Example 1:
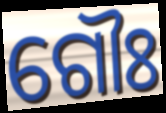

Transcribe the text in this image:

ଗୌଃ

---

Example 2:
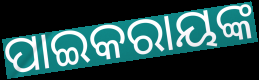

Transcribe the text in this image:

ପାଇକରାୟଙ୍କ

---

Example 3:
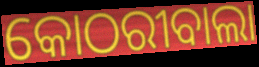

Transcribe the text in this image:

କୋଠରୀବାଲା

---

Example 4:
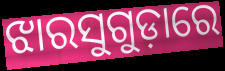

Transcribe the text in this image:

ଝାରସୁଗୁଡ଼ାରେ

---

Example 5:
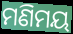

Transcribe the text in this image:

ମଣିମୟ